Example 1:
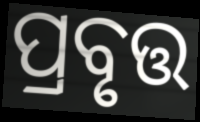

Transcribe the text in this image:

ପ୍ରବୃତ୍ତ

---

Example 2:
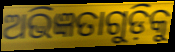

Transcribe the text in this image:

ଅଭିଜ୍ଞତାଗୁଡ଼ିକୁ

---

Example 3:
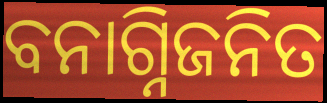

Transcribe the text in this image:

ବନାଗ୍ନିଜନିତ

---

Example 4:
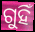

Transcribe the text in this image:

ଗୁହିଁ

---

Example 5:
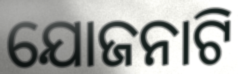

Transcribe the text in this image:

ଯୋଜନାଟି